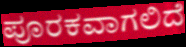
ಪೂರಕವಾಗಲಿದೆ